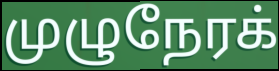
முழுநேரக்